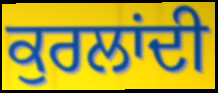
ਕੁਰਲਾਂਦੀ